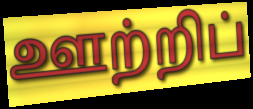
ஊற்றிப்